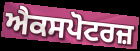
ਐਕਸਪੋਟਰਜ਼